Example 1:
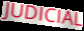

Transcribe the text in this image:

JUDICIAL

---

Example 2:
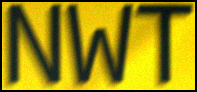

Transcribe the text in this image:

NWT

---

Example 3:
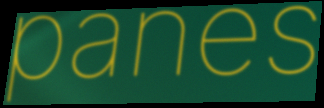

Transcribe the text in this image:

panes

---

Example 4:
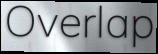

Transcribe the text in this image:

Overlap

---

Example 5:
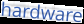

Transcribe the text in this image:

hardware